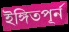
ইঙ্গিতপূর্ন